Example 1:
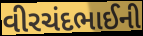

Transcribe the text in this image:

વીરચંદભાઈની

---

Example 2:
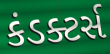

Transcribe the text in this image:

કંડક્ટર્સ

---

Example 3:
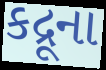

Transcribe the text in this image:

કદ્રૂના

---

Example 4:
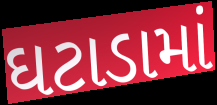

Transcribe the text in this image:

ઘટાડામાં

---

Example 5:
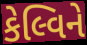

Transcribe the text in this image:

કેલ્વિને